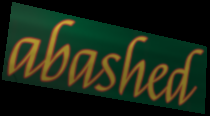
abashed